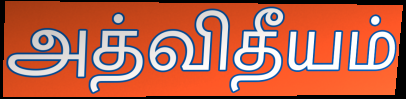
அத்விதீயம்